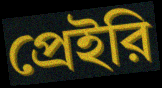
প্রেইরি